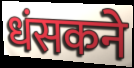
धंसकने